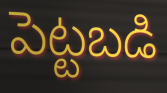
పెట్టబడి